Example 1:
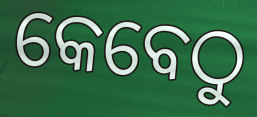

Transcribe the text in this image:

କେବେଠୁ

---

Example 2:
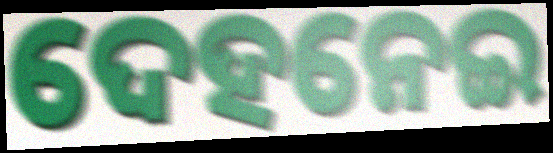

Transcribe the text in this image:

ଦେହନେଇ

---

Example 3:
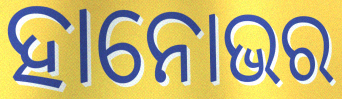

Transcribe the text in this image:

ହାନୋଭର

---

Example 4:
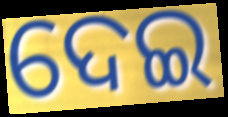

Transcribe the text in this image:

ଦେଇ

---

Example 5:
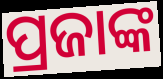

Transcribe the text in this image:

ପ୍ରଜାଙ୍କ